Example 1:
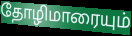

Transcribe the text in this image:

தோழிமாரையும்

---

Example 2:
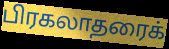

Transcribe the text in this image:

பிரகலாதரைக்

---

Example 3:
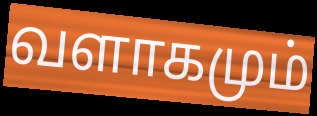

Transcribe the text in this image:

வளாகமும்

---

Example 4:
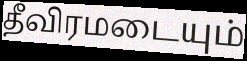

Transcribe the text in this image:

தீவிரமடையும்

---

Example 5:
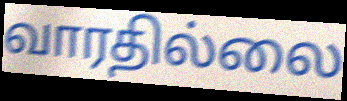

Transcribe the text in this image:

வாரதில்லை